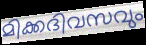
മിക്കദിവസവും